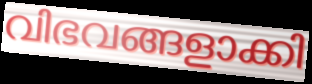
വിഭവങ്ങളാക്കി